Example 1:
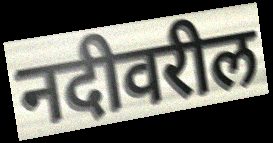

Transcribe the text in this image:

नदीवरील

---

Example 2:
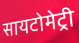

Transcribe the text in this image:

सायटोमेट्री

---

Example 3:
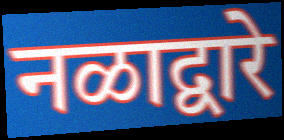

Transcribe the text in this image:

नळाद्वारे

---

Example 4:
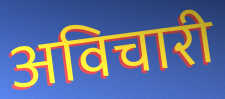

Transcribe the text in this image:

अविचारी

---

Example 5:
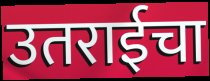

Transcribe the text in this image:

उतराईचा